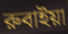
রুবাইয়া